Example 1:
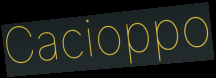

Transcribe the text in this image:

Cacioppo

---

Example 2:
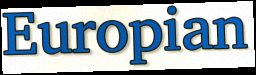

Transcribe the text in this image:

Europian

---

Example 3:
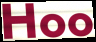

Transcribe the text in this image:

Hoo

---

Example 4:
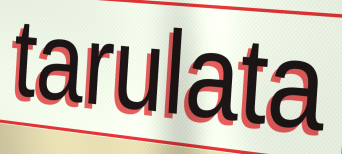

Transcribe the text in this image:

tarulata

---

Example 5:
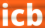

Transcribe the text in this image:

icb